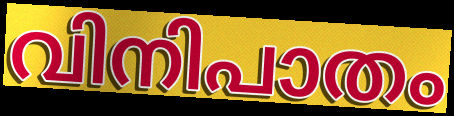
വിനിപാതം